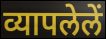
व्यापलेलें